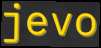
jevo